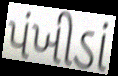
પંખીડાં